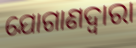
ଯୋଗାଣଦ୍ଵାରା